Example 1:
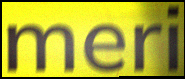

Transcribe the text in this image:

meri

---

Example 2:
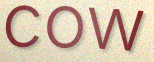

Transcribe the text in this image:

cow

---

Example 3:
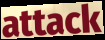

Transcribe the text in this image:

attack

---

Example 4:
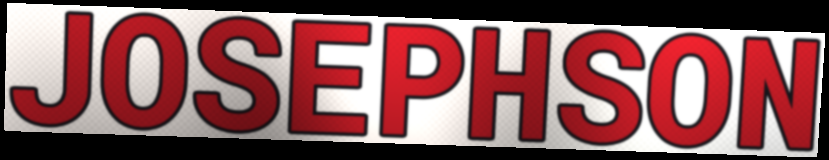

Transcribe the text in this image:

JOSEPHSON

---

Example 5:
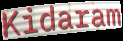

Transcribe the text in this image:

Kidaram